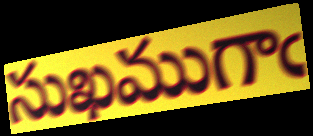
సుఖముగాఁ